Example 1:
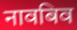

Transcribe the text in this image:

नावबिव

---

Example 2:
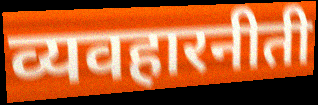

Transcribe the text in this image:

व्यवहारनीती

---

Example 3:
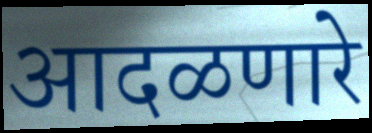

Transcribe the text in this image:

आदळणारे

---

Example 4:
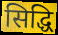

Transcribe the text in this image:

सिद्धि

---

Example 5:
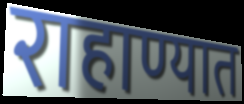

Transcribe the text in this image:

राहाण्यात